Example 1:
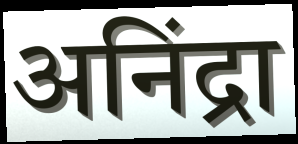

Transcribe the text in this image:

अनिंद्रा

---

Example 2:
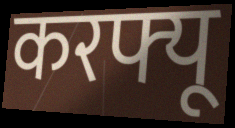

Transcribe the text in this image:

करफ्यू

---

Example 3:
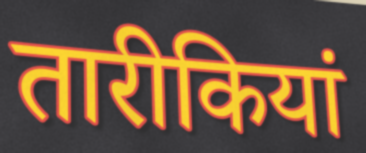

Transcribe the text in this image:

तारीकियां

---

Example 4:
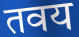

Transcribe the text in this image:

तवय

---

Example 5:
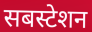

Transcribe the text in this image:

सबस्टेशन